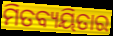
ମିତବ୍ୟୟିତାର